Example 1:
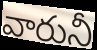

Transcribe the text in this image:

వారునీ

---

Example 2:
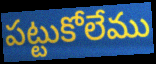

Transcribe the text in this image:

పట్టుకోలేము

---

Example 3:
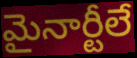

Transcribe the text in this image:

మైనార్టీలే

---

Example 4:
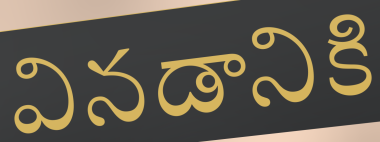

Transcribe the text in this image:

వినడానికి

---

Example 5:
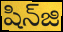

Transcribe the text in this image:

షిన్‌జి